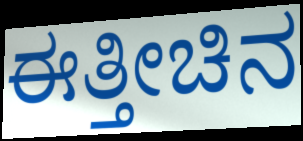
ಈತ್ತೀಚಿನ